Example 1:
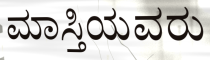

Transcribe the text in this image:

ಮಾಸ್ತಿಯವರು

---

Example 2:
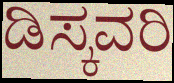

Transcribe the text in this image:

ಡಿಸ್ಕವರಿ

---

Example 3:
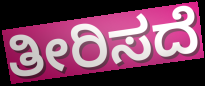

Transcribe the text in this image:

ತೀರಿಸದೆ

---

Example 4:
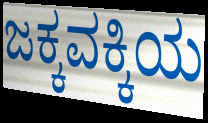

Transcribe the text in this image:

ಜಕ್ಕವಕ್ಕಿಯ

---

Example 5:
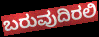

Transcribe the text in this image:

ಬರುವುದಿರಲಿ